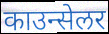
काउन्सेलर